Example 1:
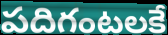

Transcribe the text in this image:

పదిగంటలకే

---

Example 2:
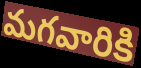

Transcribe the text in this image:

మగవారికి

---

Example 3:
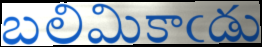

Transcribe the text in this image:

బలిమికాఁడు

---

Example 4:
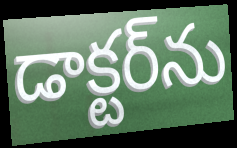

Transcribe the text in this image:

డాక్టర్‌ను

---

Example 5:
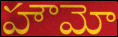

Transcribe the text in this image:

హౌమో